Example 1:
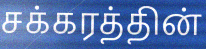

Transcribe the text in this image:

சக்கரத்தின்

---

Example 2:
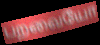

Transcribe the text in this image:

பறவையோ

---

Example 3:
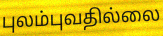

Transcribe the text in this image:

புலம்புவதில்லை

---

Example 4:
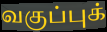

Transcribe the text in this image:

வகுப்புக்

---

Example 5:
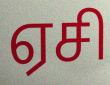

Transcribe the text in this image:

ஏசி